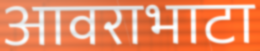
आवराभाटा